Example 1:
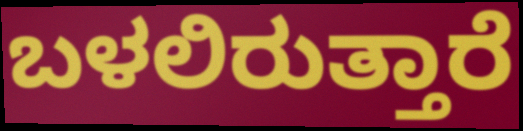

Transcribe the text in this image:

ಬಳಲಿರುತ್ತಾರೆ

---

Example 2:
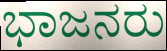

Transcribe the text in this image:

ಭಾಜನರು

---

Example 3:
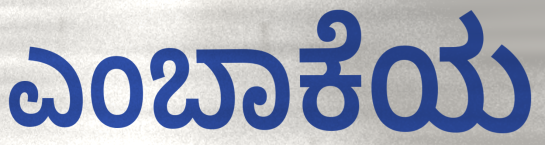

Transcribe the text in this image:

ಎಂಬಾಕೆಯ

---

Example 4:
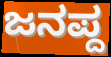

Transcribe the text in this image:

ಜನಪ್ದ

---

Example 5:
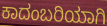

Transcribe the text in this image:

ಕಾದಂಬರಿಯಾಗಿ